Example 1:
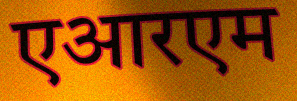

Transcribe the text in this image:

एआरएम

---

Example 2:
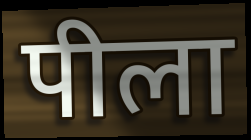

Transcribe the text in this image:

पीला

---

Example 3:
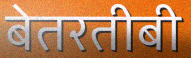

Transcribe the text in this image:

बेतरतीबी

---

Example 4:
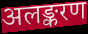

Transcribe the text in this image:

अलङ्करण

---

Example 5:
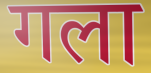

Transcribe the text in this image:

गला